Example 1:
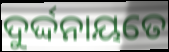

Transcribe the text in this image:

ଦୁର୍ଦ୍ଦନାୟତେ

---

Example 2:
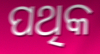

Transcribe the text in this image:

ପଥିକ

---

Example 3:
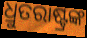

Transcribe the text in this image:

ଧ୍ରୁତରାଷ୍ଟ୍ରଙ୍କ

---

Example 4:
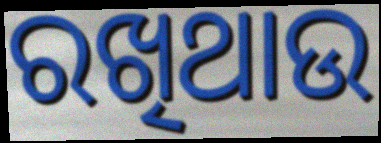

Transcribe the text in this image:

ରଖିଥାଉ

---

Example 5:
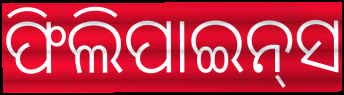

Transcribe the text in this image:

ଫିଲିପାଇନ୍‍ସ